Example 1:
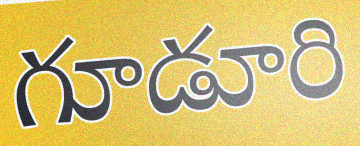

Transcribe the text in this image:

గూడూరి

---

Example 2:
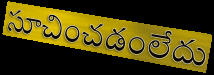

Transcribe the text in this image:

సూచించడంలేదు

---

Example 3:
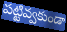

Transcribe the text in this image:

పట్టివ్వకుండా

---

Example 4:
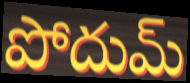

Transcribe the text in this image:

పోదుమ్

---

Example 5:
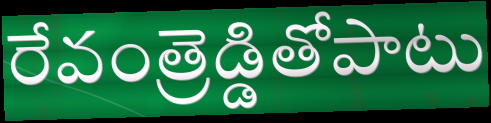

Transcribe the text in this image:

రేవంత్రెడ్డితోపాటు